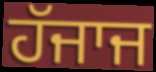
ਹੱਜਾਜ